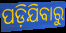
ପଡ଼ିଯିବାରୁ